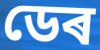
ডেৰ